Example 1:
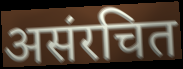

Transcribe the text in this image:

असंरचित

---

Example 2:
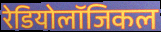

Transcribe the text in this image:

रेडियोलॉजिकल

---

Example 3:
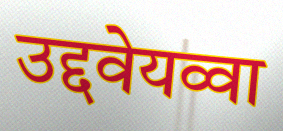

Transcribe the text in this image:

उद्दवेयव्वा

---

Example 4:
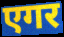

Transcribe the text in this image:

एगर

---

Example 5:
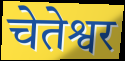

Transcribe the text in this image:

चेतेश्वर